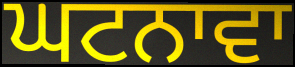
ਘਟਨਾਵਾ